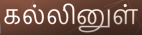
கல்லினுள்